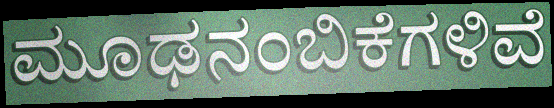
ಮೂಢನಂಬಿಕೆಗಳಿವೆ